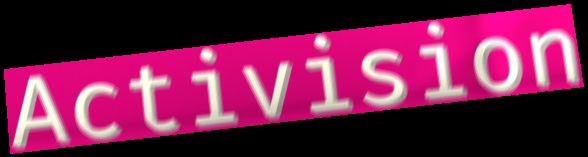
Activision